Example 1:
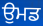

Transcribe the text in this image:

ਉਮਡ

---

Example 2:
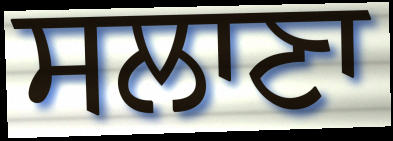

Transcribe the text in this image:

ਸਲਾਣਾ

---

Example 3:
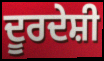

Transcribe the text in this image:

ਦੂਰਦੇਸ਼ੀ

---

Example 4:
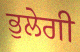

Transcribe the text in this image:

ਭੁਲੇਗੀ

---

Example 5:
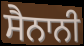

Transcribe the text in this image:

ਸੈਨਾਨੀ